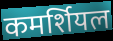
कमर्शियल